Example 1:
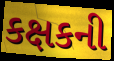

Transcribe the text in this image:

કક્ષકની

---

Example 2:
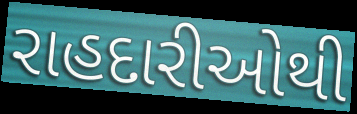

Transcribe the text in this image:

રાહદારીઓથી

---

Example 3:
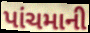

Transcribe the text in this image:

પાંચમાની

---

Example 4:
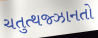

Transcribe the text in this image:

ચતુત્થજ્ઝાનતો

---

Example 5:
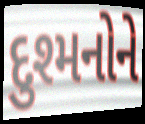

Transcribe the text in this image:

દુશ્મનોને